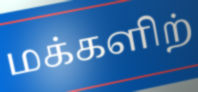
மக்களிற்